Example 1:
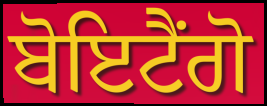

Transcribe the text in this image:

ਬੋਇਟੈਂਗੋ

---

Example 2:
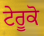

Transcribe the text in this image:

ਟੇਰੂਕੋ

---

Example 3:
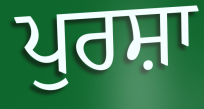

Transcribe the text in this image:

ਪੁਰਸ਼ਾ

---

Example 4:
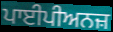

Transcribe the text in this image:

ਪਾਈਪੀਅਨਜ਼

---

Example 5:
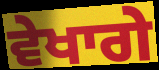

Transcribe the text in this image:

ਵੇਖਾਗੇ